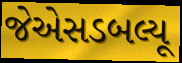
જેએસડબલ્યૂ